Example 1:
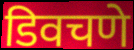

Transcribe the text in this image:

डिवचणे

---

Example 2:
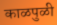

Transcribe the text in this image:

काळपुळी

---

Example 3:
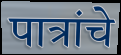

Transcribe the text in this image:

पात्रांचे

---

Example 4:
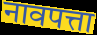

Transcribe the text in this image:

नावपत्ता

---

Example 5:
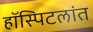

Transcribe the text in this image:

हॉस्पिटलांत